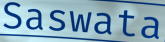
Saswata